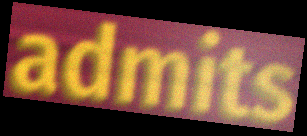
admits